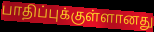
பாதிப்புக்குள்ளானது